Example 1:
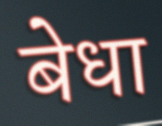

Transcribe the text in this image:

बेधा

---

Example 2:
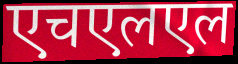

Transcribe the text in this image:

एचएलएल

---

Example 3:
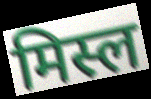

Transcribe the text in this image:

मिस्ल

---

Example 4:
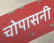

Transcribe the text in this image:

चोपासनी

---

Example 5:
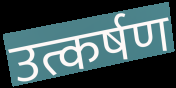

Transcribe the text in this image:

उत्कर्षण